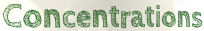
Concentrations